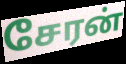
சேரன்